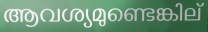
ആവശ്യമുണ്ടെങ്കില്